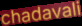
chadavali